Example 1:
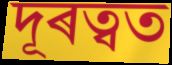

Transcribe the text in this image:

দূৰত্বত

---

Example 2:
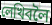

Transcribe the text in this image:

লেখিবলৈ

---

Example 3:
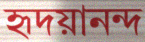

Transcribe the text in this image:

হৃদয়ানন্দ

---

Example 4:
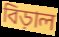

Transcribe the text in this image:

বিড়াল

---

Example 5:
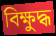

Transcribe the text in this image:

বিক্ষুদ্ধ